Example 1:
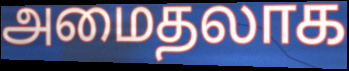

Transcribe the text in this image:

அமைதலாக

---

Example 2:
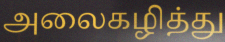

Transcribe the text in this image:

அலைகழித்து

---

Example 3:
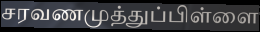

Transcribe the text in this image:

சரவணமுத்துப்பிள்ளை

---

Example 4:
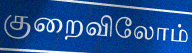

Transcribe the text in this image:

குறைவிலோம்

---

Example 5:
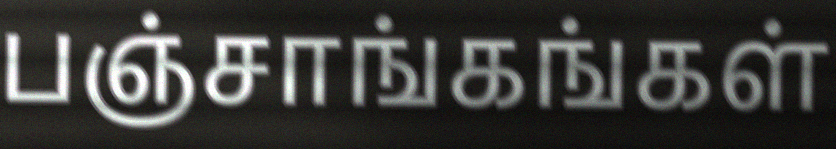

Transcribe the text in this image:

பஞ்சாங்கங்கள்